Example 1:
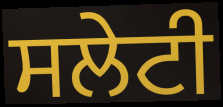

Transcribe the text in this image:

ਸਲੇਟੀ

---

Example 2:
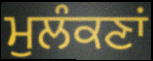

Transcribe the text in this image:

ਮੁਲੰਕਣਾਂ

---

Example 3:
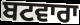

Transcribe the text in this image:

ਬਟਵਾਰਾ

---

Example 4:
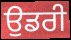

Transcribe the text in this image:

ਉਡਰੀ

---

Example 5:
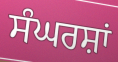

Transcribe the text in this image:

ਸੰਘਰਸ਼ਾਂ